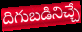
దిగుబడినిచ్చే